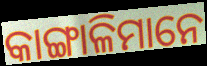
କାଙ୍ଗାଳିମାନେ